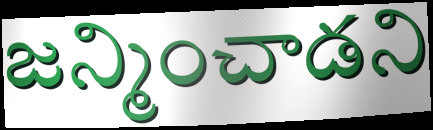
జన్మించాడని